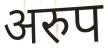
अरुप